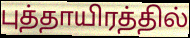
புத்தாயிரத்தில்